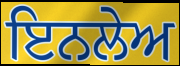
ਇਨਲੇਅ